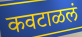
कवटाळलं